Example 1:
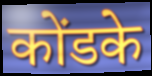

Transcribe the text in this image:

कोंडके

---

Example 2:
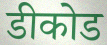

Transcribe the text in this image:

डीकोड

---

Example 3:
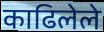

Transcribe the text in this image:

काढिलेले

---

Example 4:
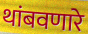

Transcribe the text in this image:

थांबवणारे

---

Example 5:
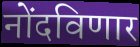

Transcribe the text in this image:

नोंदविणार